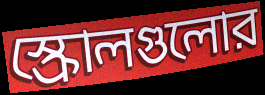
স্ক্রোলগুলোর